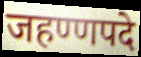
जहण्णपदे